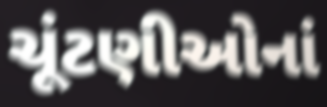
ચૂંટણીઓનાં